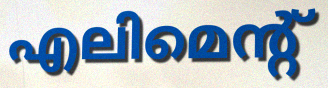
എലിമെന്റ്